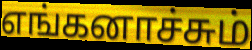
எங்கனாச்சும்